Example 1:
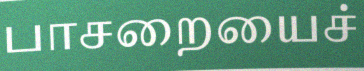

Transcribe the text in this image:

பாசறையைச்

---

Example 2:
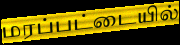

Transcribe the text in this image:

மரப்பட்டையில்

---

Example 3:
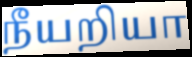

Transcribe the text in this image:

நீயறியா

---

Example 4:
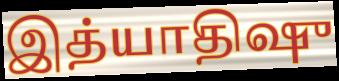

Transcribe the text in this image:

இத்யாதிஷு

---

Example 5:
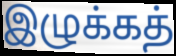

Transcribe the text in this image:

இழுக்கத்